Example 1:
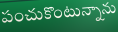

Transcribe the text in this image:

పంచుకొంటున్నాను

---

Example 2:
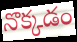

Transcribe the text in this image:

నొక్కడం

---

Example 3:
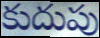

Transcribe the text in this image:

కుదుపు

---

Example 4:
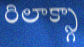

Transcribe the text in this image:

రిలాక్స్గా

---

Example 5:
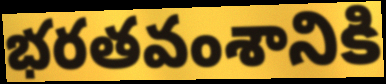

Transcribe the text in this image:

భరతవంశానికి